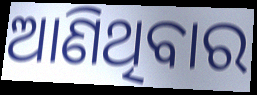
ଆଣିଥିବାର